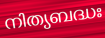
നിത്യബദ്ധഃ